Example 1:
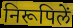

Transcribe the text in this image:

निरूपिलें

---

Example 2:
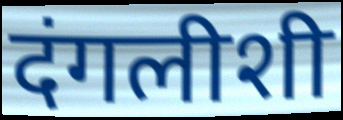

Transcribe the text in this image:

दंगलीशी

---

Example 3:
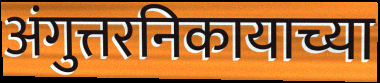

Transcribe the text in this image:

अंगुत्तरनिकायाच्या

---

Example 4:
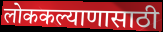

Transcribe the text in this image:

लोककल्याणासाठी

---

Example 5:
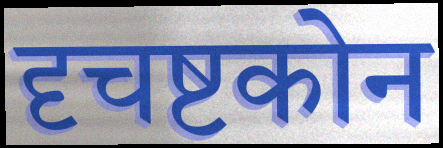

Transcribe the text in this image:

दृचष्टकोन